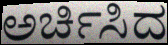
ಅರ್ಚಿಸಿದ